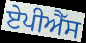
ਏਪੀਐੱਸ